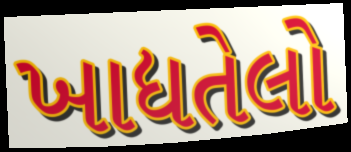
ખાદ્યતેલો